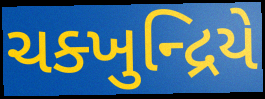
ચક્ખુન્દ્રિયે